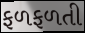
ફળફળતી